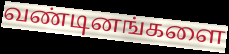
வண்டினங்களை